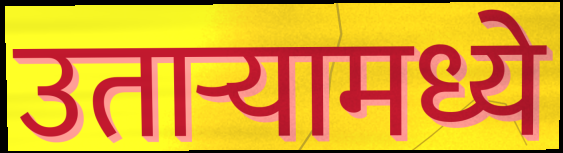
उतार्‍यामध्ये